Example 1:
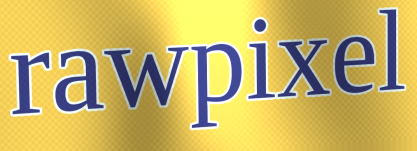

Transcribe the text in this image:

rawpixel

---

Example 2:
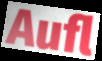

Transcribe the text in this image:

Aufl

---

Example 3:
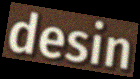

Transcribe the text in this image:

desin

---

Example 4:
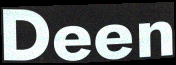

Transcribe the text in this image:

Deen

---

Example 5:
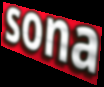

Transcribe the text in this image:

sona